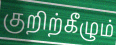
குறிற்கீழும்